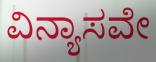
ವಿನ್ಯಾಸವೇ